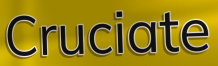
Cruciate